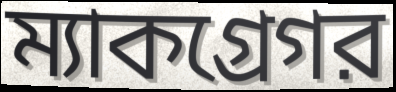
ম্যাকগ্রেগর